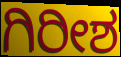
ಗಿರೀಶ